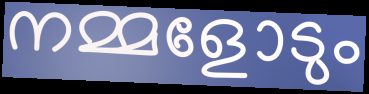
നമ്മളോടും